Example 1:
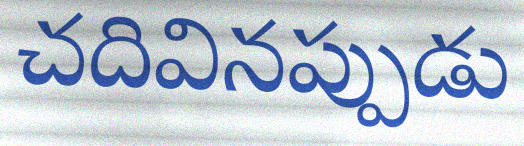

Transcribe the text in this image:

చదివినప్పుడు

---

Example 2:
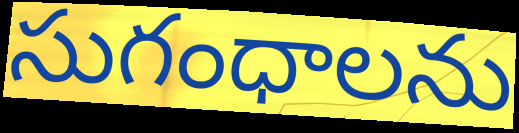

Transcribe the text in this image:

సుగంధాలను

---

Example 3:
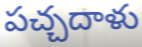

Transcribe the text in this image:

పచ్చదాళు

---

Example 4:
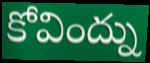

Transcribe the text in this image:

కోవింద్ను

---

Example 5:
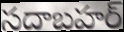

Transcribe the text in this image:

సదాబహర్